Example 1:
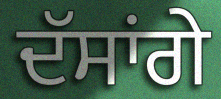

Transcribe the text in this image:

ਦੱਸਾਂਗੇ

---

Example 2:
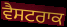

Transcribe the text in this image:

ਵੈਸਟਰਾਕ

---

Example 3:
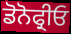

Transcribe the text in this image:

ਡੋਨੋਫ੍ਰੀਓ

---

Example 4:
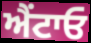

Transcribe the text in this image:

ਐਂਟਾਓ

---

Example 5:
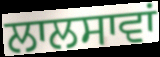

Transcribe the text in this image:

ਲਾਲਸਾਵਾਂ